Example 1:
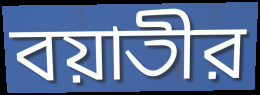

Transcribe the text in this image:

বয়াতীর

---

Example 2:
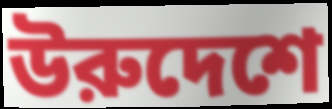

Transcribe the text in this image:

উরুদেশে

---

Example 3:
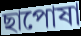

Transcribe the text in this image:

ছাপোষা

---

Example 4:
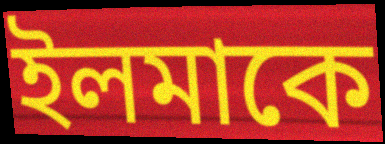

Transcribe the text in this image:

ইলমাকে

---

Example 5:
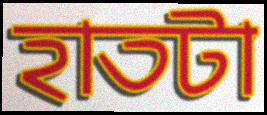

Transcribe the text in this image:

হাতটা